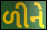
ળીને